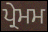
ਪ੍ਰੇਮਮ